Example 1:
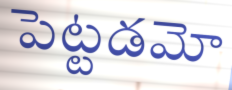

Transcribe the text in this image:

పెట్టడమో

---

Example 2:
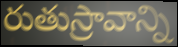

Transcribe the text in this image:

రుతుస్రావాన్ని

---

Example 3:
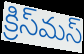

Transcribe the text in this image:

క్రిస్‌మస్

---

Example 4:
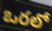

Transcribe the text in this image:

ఒరలో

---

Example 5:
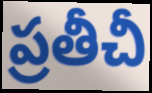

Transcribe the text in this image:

ప్రతీచీ